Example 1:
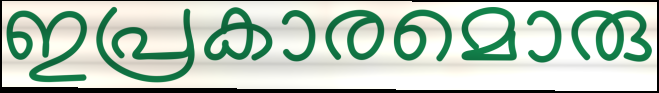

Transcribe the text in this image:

ഇപ്രകാരമൊരു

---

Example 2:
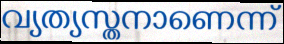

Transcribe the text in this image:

വ്യത്യസ്തനാണെന്ന്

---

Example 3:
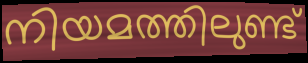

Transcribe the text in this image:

നിയമത്തിലുണ്ട്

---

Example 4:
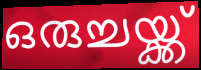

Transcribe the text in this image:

ഒരുച്ചയ്ക്ക്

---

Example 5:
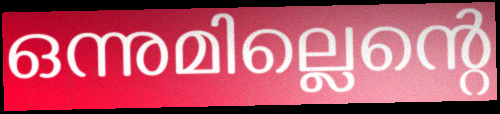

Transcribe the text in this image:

ഒന്നുമില്ലെന്റെ